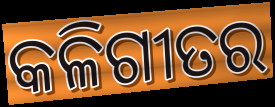
କଳିଗୀତର